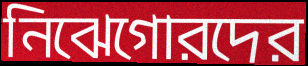
নিঝেগোরদের